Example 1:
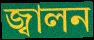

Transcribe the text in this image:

জ্বালন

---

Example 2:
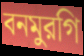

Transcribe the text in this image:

বনমুরগি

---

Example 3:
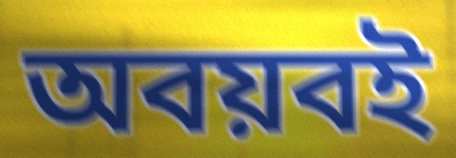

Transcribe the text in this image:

অবয়বই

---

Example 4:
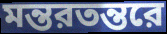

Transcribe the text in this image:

মন্তরতন্তরে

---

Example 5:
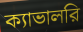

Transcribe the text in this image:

ক্যাভালরি